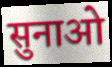
सुनाओ